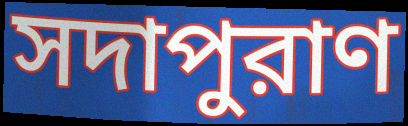
সদাপুরাণ